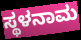
ಸ್ಥಳನಾಮ